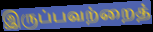
இருப்பவற்றைத்